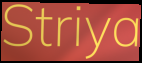
Striya